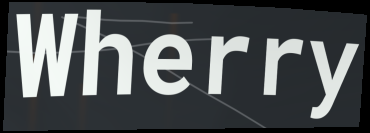
Wherry